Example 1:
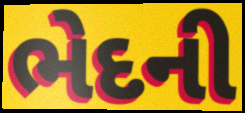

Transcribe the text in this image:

ભેદની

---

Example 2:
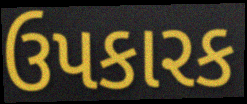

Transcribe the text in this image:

ઉપકારક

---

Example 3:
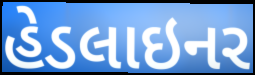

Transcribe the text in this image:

હેડલાઇનર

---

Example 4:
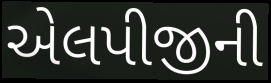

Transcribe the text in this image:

એલપીજીની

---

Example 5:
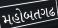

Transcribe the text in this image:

મહોબતગઢ